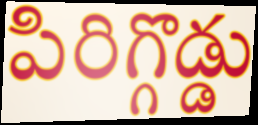
పిరిగ్గొడ్డు